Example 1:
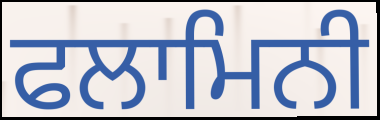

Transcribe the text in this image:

ਫਲਾਮਿਨੀ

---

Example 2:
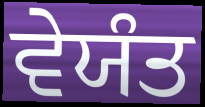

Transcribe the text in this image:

ਵੇਯੰਤ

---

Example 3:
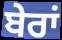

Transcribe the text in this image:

ਬੇਰਾਂ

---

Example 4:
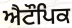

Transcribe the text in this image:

ਐਟੌਪਿਕ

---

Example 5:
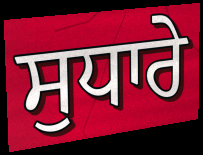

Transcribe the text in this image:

ਸੁਧਾਰੇ